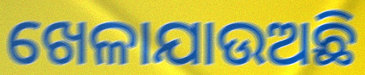
ଖେଳାଯାଉଅଛି